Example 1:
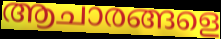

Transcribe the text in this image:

ആചാരങ്ങളെ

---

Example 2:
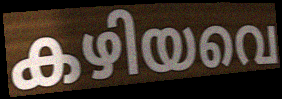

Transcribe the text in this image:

കഴിയവെ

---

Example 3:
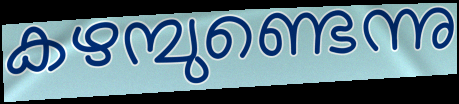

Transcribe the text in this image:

കഴമ്പുണ്ടെന്നു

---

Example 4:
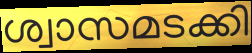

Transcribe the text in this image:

ശ്വാസമടക്കി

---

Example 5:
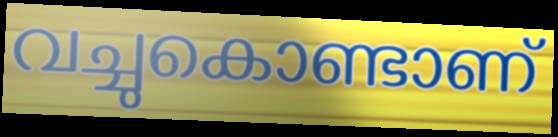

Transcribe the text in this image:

വച്ചുകൊണ്ടാണ്